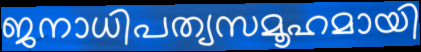
ജനാധിപത്യസമൂഹമായി